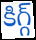
కిగ్గ్